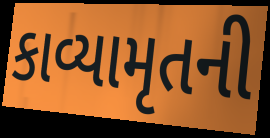
કાવ્યામૃતની